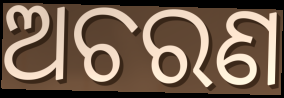
ଅଚରଣ